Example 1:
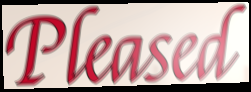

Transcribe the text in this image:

Pleased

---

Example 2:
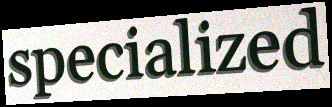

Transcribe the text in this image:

specialized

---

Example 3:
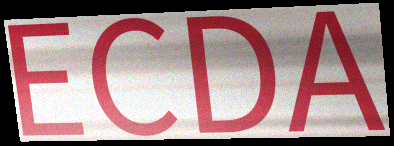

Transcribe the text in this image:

ECDA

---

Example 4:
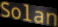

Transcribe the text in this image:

Solan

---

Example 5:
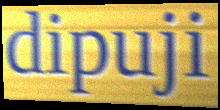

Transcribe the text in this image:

dipuji